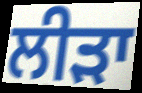
ਲੀੜਾ